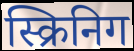
स्क्रिनिग